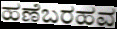
ಹಣೆಬರಹವ